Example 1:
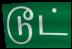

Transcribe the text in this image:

டூட்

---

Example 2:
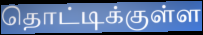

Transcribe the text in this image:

தொட்டிக்குள்ள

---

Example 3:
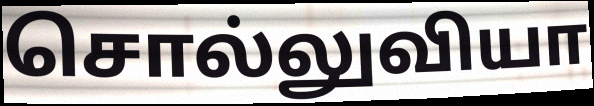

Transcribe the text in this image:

சொல்லுவியா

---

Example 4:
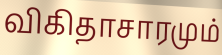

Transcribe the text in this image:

விகிதாசாரமும்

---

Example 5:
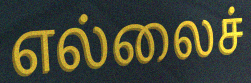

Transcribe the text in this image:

எல்லைச்